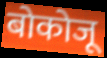
बोकोजू